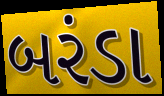
બરંડા